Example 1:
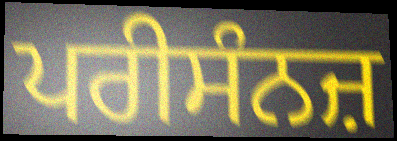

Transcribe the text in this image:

ਪਰੀਸੰਨਜ਼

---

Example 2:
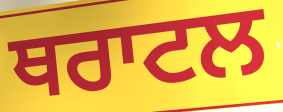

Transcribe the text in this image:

ਥਰਾਟਲ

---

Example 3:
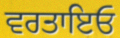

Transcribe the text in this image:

ਵਰਤਾਇਓ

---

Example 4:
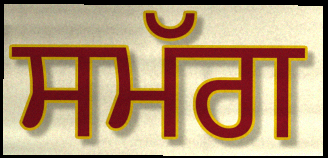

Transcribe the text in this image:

ਸਮੱਗ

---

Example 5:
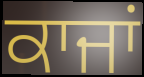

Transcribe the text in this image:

ਕਾਜਾਂ